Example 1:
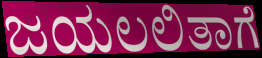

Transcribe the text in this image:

ಜಯಲಲಿತಾಗೆ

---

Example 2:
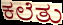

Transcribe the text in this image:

ಕಲೆತು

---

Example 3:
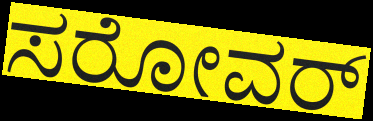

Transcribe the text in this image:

ಸರೋವರ್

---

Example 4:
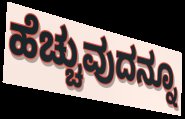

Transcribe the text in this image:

ಹೆಚ್ಚುವುದನ್ನೂ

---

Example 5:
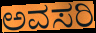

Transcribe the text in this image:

ಅವಸರಿ